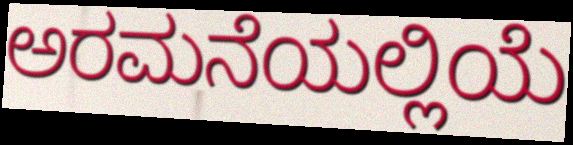
ಅರಮನೆಯಲ್ಲಿಯೆ